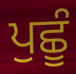
ਪੁਛੂੰ